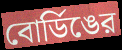
বোর্ডিঙের